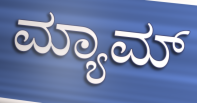
ಮ್ಯಾಮ್